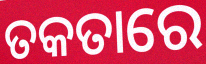
ତକତାରେ